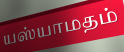
யஸ்யாமதம்